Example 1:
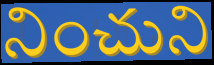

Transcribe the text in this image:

నించుని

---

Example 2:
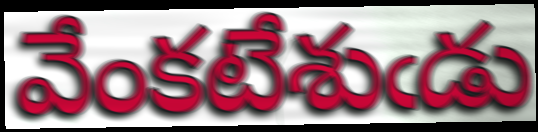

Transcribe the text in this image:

వేంకటేశుఁడు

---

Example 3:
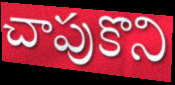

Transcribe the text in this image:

చాపుకొని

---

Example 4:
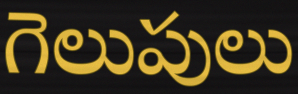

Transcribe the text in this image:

గెలుపులు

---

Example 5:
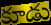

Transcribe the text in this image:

కూడు